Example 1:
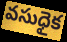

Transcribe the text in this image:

వసుధైక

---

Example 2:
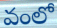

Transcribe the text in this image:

వంలో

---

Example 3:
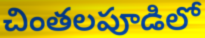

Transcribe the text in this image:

చింతలపూడిలో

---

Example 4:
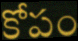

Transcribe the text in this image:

కోపం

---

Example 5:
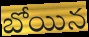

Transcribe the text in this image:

బోయిన